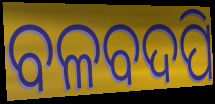
ବଳବଦପି